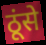
ठूंसे